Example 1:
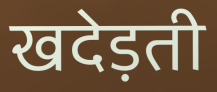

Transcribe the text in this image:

खदेड़ती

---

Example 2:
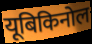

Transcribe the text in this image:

यूबिकिनोल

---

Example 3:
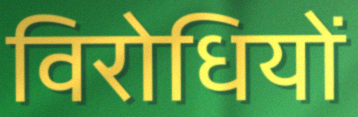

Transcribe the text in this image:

विरोधियों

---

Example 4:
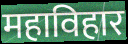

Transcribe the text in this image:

महाविहार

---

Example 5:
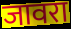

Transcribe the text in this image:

जावरा